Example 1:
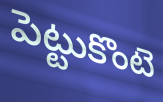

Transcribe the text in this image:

పెట్టుకొంటె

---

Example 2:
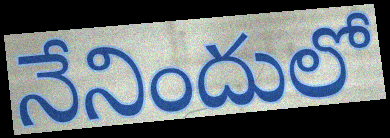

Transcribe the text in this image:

నేనిందులో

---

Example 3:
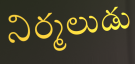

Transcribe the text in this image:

నిర్మలుడు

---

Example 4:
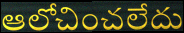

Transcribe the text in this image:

ఆలోచించలేదు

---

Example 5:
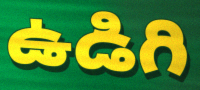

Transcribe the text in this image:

ఉడిగి